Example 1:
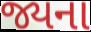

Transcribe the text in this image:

જ્યના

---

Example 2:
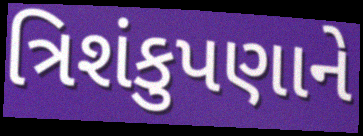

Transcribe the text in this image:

ત્રિશંકુપણાને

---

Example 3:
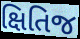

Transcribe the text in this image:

ક્ષિતિજ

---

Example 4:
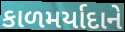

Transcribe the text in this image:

કાળમર્યાદાને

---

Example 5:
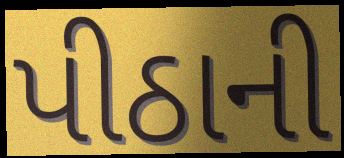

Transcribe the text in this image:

પીઠાની